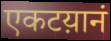
एकटय़ानं